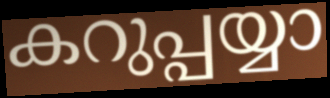
കറുപ്പയ്യാ